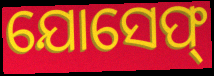
ଯୋସେଫ୍